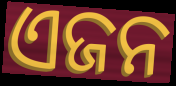
ଏଜନ